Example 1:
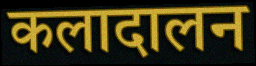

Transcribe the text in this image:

कलादालन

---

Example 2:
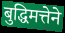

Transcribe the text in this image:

बुद्धिमत्तेने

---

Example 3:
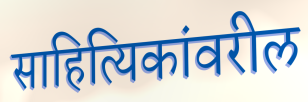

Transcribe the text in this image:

साहित्यिकांवरील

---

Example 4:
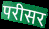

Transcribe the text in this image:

परीसर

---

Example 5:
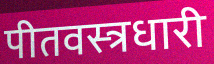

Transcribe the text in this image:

पीतवस्त्रधारी